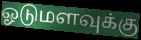
ஓடுமளவுக்கு